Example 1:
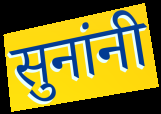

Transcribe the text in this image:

सुनांनी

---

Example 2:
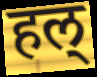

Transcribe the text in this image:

हल्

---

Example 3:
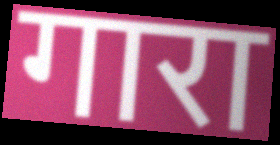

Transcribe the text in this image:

गारा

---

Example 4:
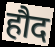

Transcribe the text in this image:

हौद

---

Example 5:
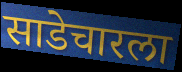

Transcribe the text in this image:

साडेचारला